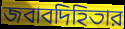
জবাবদিহিতার